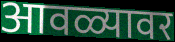
आवळ्यावर